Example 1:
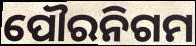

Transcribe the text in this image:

ପୌରନିଗମ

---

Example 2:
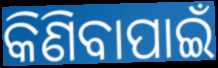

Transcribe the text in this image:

କିଣିବାପାଇଁ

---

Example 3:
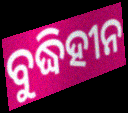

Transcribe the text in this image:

ବୁଦ୍ଧିହୀନ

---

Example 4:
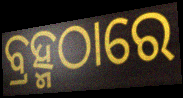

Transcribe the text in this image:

ବ୍ରହ୍ମଠାରେ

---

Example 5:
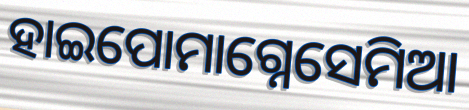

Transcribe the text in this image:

ହାଇପୋମାଗ୍ନେସେମିଆ